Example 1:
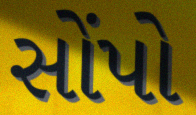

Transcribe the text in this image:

સોંપો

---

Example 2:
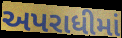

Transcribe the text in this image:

અપરાધીમાં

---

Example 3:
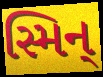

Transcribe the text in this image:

સ્મિન્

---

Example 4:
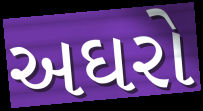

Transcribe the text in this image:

અઘરો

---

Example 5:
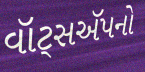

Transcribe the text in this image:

વૉટ્સઍપનો